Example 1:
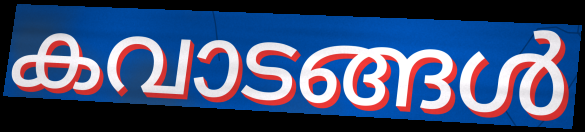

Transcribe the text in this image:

കവാടങ്ങൾ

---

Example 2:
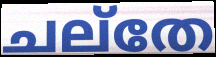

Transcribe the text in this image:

ചല്തേ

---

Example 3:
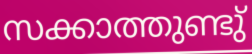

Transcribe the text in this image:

സക്കാത്തുണ്ടു്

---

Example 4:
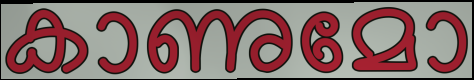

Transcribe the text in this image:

കാണുമോ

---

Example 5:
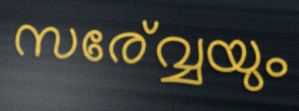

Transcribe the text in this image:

സര്വ്വേയും